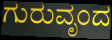
ಗುರುವೃಂದ